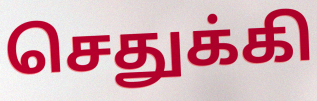
செதுக்கி